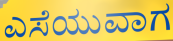
ಎಸೆಯುವಾಗ